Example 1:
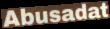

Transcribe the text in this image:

Abusadat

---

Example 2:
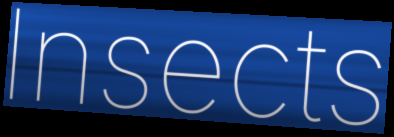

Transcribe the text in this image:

Insects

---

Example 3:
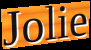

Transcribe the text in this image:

Jolie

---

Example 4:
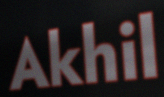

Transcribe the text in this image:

Akhil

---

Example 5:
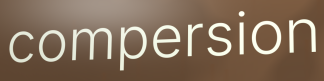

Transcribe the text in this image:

compersion